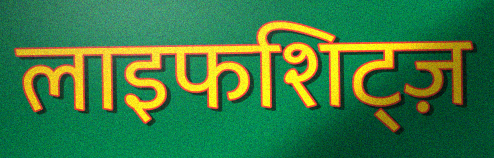
लाइफशिट्ज़